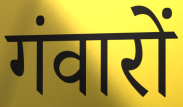
गंवारों